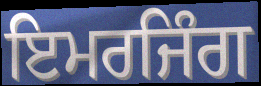
ਇਮਰਜਿੰਗ